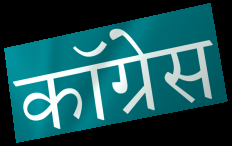
कॉग्रेस